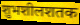
शुभशीलशतक